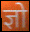
ज्ञो